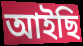
আইছি